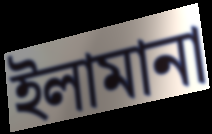
ইলামানা